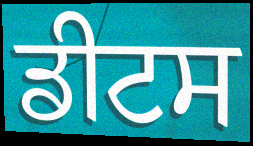
ਡੀਟਸ